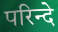
परिन्दे